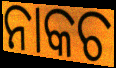
ନାକଚ